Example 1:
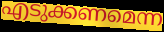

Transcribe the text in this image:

എടുക്കണമെന്ന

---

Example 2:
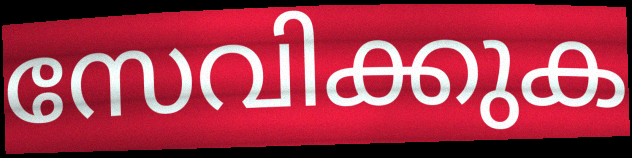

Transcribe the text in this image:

സേവിക്കുക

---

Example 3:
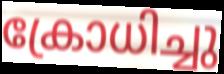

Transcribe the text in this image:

ക്രോധിച്ചു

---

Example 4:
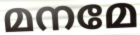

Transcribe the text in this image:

മനമേ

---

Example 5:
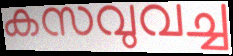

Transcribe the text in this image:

കസവുവച്ച